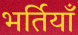
भर्तियाँ